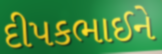
દીપકભાઈને